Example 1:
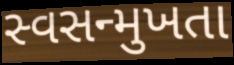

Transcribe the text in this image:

સ્વસન્મુખતા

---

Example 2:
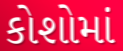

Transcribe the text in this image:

કોશોમાં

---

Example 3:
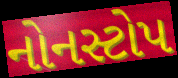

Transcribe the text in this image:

નોનસ્ટોપ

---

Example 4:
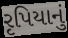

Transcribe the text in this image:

રૃપિયાનું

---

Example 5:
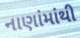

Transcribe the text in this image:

નાણાંમાંથી